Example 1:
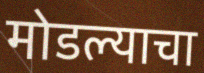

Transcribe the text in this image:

मोडल्याचा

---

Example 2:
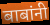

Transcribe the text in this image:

बाबांनी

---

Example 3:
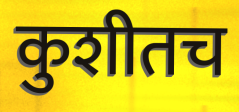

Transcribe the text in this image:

कुशीतच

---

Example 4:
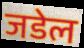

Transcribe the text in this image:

जडेल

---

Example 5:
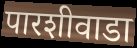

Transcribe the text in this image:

पारशीवाडा